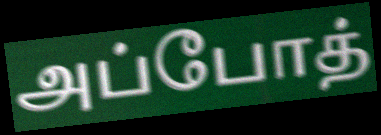
அப்போத்